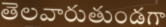
తెలవారుతుండగా